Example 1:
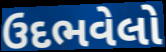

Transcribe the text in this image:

ઉદભવેલો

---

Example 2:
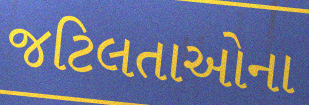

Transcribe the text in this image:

જટિલતાઓના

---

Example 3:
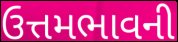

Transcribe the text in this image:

ઉત્તમભાવની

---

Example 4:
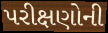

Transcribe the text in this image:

પરીક્ષણોની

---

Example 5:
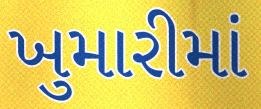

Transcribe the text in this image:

ખુમારીમાં